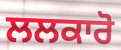
ਲਲਕਾਰੋ